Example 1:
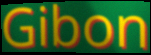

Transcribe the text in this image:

Gibon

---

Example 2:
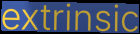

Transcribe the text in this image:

extrinsic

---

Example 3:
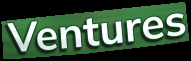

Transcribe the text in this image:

Ventures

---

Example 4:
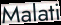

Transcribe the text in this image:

Malati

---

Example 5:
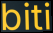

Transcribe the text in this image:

biti